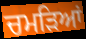
ਚਮੜਿਆਂ